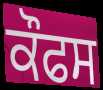
ਕੌਫਸ